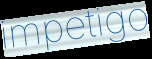
impetigo